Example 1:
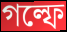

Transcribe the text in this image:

গল্ফে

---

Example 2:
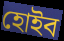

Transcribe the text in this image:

হোইব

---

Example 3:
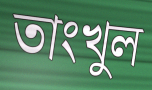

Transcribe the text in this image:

তাংখুল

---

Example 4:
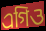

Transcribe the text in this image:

এগিও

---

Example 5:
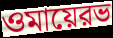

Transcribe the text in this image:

ওমায়েরভ